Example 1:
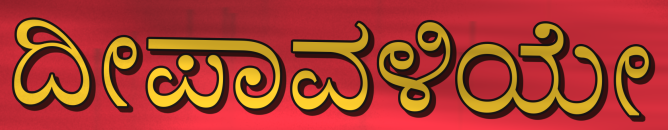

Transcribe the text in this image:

ದೀಪಾವಳಿಯೇ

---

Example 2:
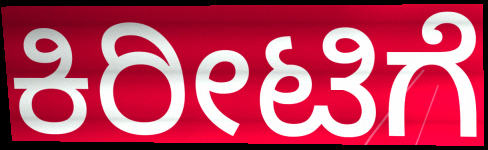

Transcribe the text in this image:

ಕಿರೀಟಿಗೆ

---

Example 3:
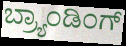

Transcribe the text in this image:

ಬ್ರ್ಯಾಂಡಿಂಗ್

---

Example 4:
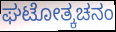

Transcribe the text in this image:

ಘಟೋತ್ಕಚನಂ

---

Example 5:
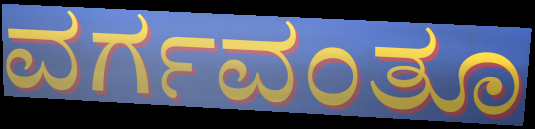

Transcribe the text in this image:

ವರ್ಗವಂತೂ